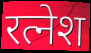
रत्नेश